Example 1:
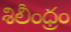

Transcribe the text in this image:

శిలీంధ్రం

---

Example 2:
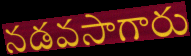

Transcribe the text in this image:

నడవసాగారు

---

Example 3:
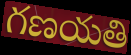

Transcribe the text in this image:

గణయతి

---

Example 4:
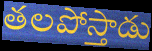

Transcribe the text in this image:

తలపోస్తాడు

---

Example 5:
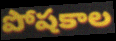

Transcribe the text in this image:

పోషకాల